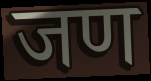
जण